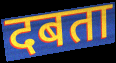
दबता